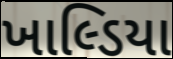
ખાલ્ડિયા